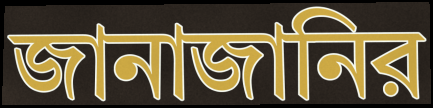
জানাজানির